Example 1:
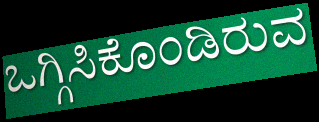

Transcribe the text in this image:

ಒಗ್ಗಿಸಿಕೊಂಡಿರುವ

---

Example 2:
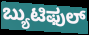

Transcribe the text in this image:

ಬ್ಯುಟಿಫುಲ್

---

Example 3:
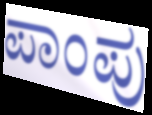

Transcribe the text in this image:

ಪಾಂಪು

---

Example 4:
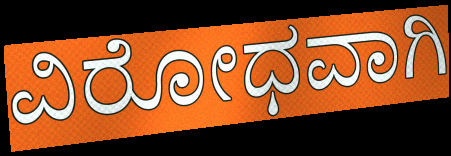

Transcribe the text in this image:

ವಿರೋಧವಾಗಿ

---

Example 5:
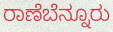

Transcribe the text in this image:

ರಾಣೆಬೆನ್ನೂರು